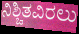
ನಿಶ್ಚಿತವಿರಲು